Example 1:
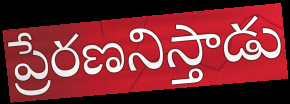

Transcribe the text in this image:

ప్రేరణనిస్తాడు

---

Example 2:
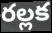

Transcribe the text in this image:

రల్లక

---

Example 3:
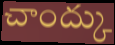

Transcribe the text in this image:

చాంద్కు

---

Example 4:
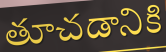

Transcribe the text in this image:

తూచడానికి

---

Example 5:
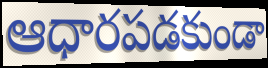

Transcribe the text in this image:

ఆధారపడకుండా